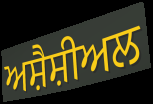
ਅਸ਼ੈਸ਼ੀਅਲ